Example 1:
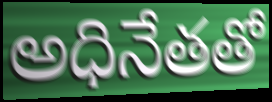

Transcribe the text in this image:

అధినేతతో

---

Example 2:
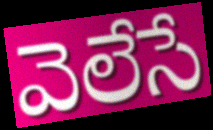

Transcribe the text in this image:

వెలేసే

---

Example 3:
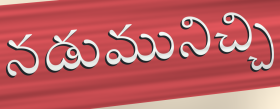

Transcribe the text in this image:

నడుమునిచ్చి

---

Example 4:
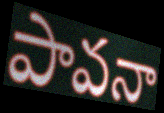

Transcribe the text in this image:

పావనా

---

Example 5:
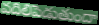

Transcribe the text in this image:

వదిలిపెడుతుందా